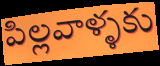
పిల్లవాళ్ళకు